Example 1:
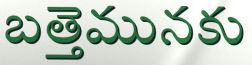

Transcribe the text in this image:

బత్తెమునకు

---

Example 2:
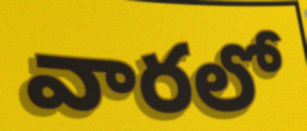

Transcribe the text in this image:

వారలో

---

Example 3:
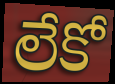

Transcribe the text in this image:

లేకో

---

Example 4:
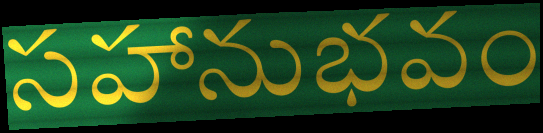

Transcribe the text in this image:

సహానుభవం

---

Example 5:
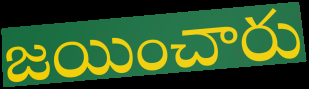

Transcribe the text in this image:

జయించారు